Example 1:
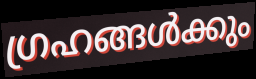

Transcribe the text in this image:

ഗ്രഹങ്ങൾക്കും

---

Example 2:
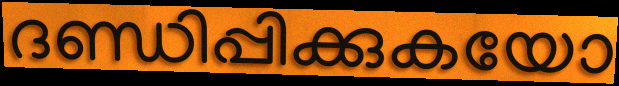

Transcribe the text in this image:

ദണ്ഡിപ്പിക്കുകയോ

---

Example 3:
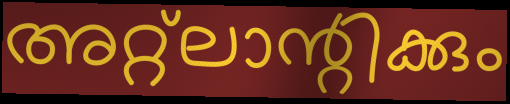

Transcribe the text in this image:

അറ്റ്ലാന്റിക്കും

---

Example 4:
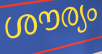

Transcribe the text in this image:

ശൗര്യം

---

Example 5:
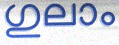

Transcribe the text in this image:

ഗുലാം